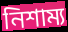
নিশাম্য